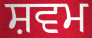
ਸ਼ਵਮ